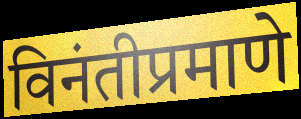
विनंतीप्रमाणे